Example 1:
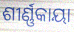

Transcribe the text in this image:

ଶୀର୍ଣ୍ଣକାୟା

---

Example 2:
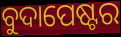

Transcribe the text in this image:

ବୁଦାପେଷ୍ଟର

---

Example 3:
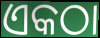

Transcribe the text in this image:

ଏକଠା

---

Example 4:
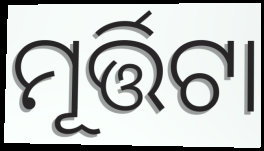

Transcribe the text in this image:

ମୂର୍ତ୍ତିଟା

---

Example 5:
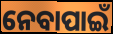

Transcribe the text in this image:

ନେବାପାଇଁ